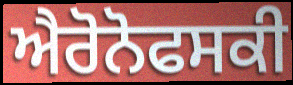
ਐਰੋਨੋਫਸਕੀ